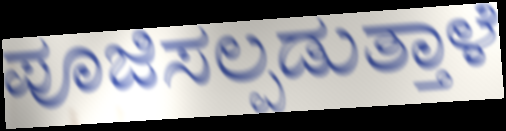
ಪೂಜಿಸಲ್ಪಡುತ್ತಾಳೆ